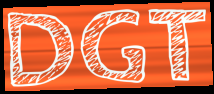
DGT